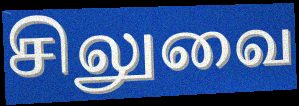
சிலுவை